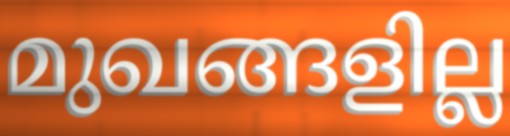
മുഖങ്ങളില്ല